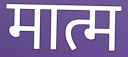
मात्म